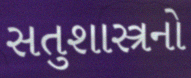
સતુશાસ્ત્રનો